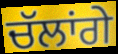
ਚੱਲਾਂਗੇ